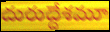
దురుద్దేశమూ